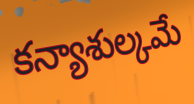
కన్యాశుల్కమే